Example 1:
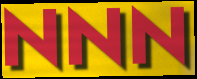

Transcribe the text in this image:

NNN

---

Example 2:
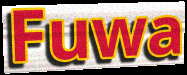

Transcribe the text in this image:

Fuwa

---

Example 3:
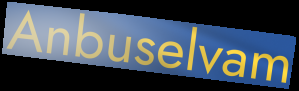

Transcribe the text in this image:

Anbuselvam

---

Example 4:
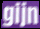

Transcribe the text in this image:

gijn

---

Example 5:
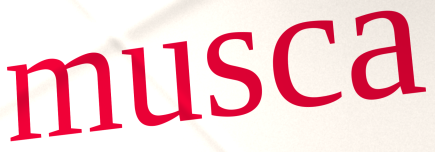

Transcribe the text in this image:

musca